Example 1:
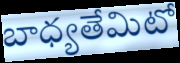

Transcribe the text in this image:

బాధ్యతేమిటో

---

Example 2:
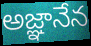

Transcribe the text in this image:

అజ్ఞానేన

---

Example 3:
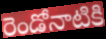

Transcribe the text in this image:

రెండోనాటికి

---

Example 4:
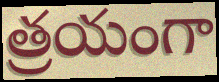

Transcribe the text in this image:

త్రయంగా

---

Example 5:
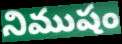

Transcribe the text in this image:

నిముషం